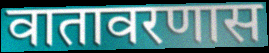
वातावरणास